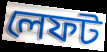
লেফট